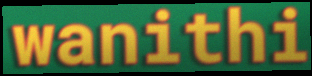
wanithi